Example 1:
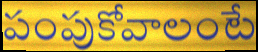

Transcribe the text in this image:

పంపుకోవాలంటే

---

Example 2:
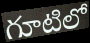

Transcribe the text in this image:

గూటిలో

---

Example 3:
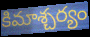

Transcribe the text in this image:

కిమాశ్చర్యం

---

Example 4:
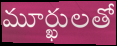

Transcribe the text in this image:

మూర్ఖులతో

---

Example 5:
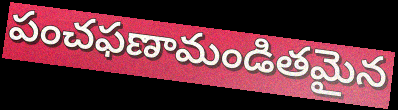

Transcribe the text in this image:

పంచఫణామండితమైన